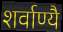
शर्वाण्यै